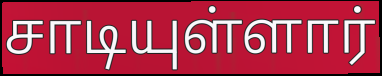
சாடியுள்ளார்